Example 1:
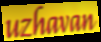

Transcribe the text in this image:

uzhavan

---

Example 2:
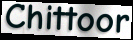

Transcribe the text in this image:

Chittoor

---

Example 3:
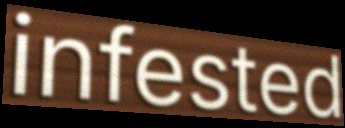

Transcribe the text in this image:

infested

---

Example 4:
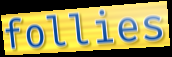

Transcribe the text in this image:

follies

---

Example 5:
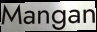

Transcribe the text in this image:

Mangan